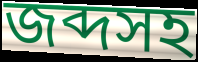
জব্দসহ